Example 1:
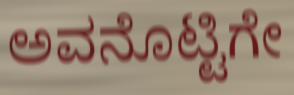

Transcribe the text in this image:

ಅವನೊಟ್ಟಿಗೇ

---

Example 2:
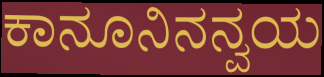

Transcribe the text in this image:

ಕಾನೂನಿನನ್ವಯ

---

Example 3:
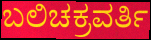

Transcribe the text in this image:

ಬಲಿಚಕ್ರವರ್ತಿ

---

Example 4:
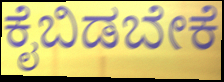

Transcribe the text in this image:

ಕೈಬಿಡಬೇಕೆ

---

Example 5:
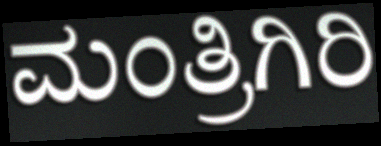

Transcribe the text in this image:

ಮಂತ್ರಿಗಿರಿ